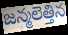
జన్మలెత్తిన